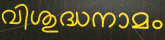
വിശുദ്ധനാമം